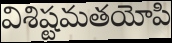
విశిష్టమతయోపి